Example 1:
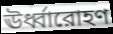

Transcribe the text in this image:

ঊর্ধ্বারোহণ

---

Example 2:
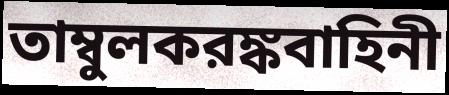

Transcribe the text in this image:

তাম্বুলকরঙ্কবাহিনী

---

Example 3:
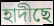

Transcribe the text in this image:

হাদীছে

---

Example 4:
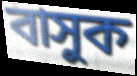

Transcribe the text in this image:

বাসুক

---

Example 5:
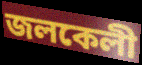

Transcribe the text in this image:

জলকেলী